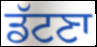
ਡੱਟਣਾ